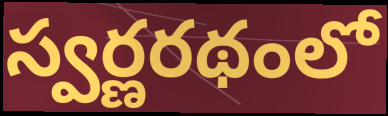
స్వర్ణరథంలో